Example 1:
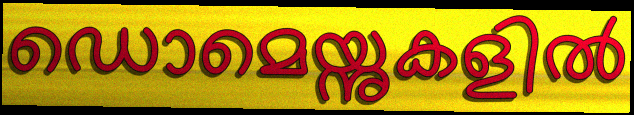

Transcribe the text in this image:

ഡൊമെയ്നുകളിൽ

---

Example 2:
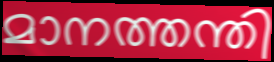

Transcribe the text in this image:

മാനത്തന്തി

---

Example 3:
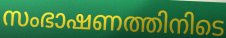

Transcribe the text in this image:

സംഭാഷണത്തിനിടെ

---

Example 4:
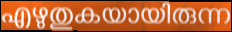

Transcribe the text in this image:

എഴുതുകയായിരുന്ന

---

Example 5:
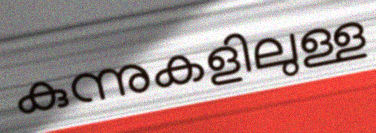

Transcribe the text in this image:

കുന്നുകളിലുള്ള